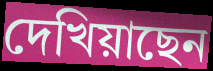
দেখিয়াছেন